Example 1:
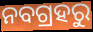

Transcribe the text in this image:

ନବଗ୍ରହରୁ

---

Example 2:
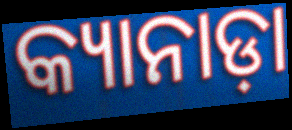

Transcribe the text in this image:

କ୍ୟାନାଡ଼ା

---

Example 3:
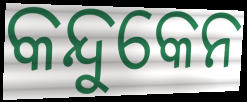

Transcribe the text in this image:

କନ୍ଦୁକେନ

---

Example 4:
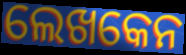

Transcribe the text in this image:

ଲେଖକେନ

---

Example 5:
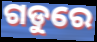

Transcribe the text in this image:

ଗଡୁରେ